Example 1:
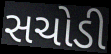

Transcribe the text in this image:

સચોડી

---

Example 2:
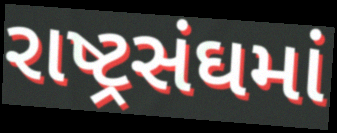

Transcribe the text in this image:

રાષ્ટ્રસંઘમાં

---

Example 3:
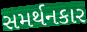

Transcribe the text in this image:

સમર્થનકાર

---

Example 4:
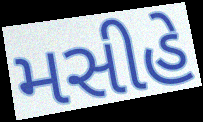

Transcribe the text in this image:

મસીહે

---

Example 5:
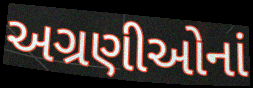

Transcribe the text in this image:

અગ્રણીઓનાં